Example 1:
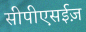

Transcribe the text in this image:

सीपीएसईज़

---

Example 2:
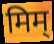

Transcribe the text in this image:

मिम्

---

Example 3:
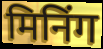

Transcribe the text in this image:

मिनिंग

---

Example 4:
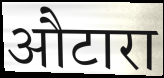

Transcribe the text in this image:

औटारा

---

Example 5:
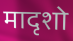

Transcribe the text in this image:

मादृशो